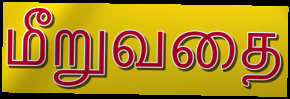
மீறுவதை